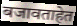
बजावताहेत